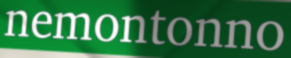
nemontonno